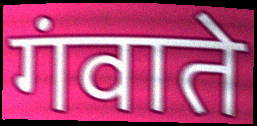
गंवाते